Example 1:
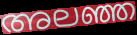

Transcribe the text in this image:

അലഞ്ഞ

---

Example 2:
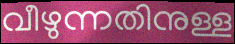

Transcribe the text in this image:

വീഴുന്നതിനുള്ള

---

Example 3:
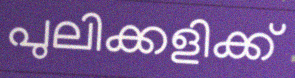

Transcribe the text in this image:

പുലിക്കളിക്ക്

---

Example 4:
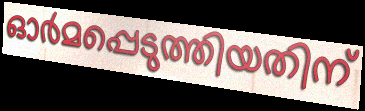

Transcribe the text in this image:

ഓർമപ്പെടുത്തിയതിന്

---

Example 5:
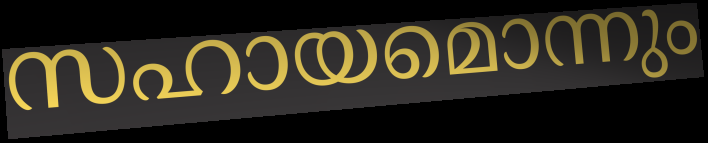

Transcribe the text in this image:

സഹായമൊന്നും